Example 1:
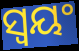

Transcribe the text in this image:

ସ୍ଵୟଂ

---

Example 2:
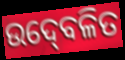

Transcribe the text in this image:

ଉଦ୍‍ବେଳିତ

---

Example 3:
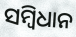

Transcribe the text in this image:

ସମ୍ୱିଧାନ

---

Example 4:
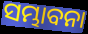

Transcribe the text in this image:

ସମ୍ଭାବନା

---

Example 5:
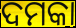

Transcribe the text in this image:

ଦମକା